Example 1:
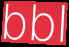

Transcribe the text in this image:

bbl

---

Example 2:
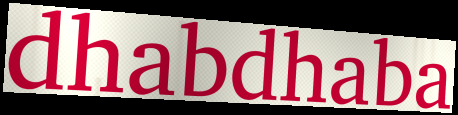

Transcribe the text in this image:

dhabdhaba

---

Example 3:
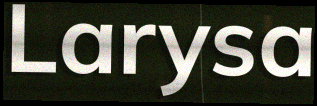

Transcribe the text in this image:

Larysa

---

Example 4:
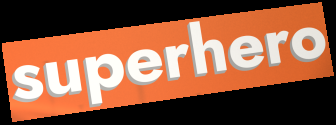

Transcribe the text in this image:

superhero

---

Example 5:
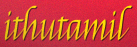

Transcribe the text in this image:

ithutamil